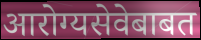
आरोग्यसेवेबाबत